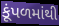
કૂંપળમાંથી